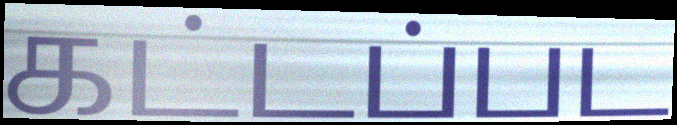
கட்டப்பட